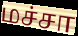
மச்சா